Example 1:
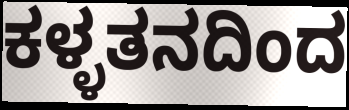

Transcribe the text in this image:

ಕಳ್ಳತನದಿಂದ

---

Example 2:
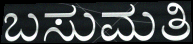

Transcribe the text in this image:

ಬಸುಮತಿ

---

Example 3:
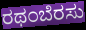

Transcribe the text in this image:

ರಥಂಬೆರಸು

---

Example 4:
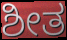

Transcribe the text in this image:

ಶೀತ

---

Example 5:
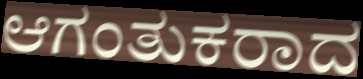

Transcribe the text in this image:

ಆಗಂತುಕರಾದ